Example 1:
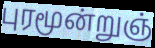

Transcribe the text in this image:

புரமூன்றுஞ்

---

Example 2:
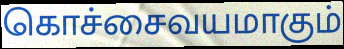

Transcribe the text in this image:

கொச்சைவயமாகும்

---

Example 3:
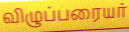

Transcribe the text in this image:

விழுப்பரையர்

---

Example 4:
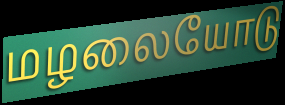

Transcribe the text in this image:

மழலையோடு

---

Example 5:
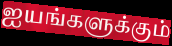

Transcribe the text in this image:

ஐயங்களுக்கும்